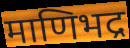
माणिभद्र